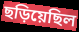
ছড়িয়েছিল